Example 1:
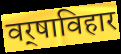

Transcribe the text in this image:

वर्षाविहार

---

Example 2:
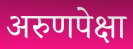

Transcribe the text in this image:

अरुणपेक्षा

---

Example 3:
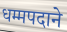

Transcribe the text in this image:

धम्मपदाने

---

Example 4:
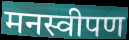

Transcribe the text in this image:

मनस्वीपण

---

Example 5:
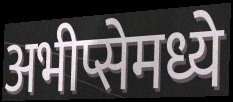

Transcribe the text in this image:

अभीप्सेमध्ये